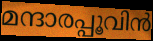
മന്ദാരപ്പൂവിൻ